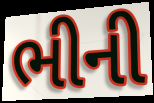
ભીની